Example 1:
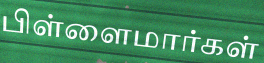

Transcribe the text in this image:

பிள்ளைமார்கள்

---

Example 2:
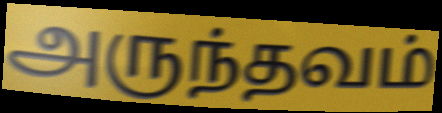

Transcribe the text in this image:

அருந்தவம்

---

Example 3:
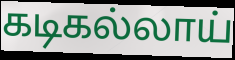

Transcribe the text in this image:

கடிகல்லாய்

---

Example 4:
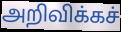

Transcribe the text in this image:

அறிவிக்கச்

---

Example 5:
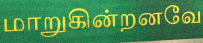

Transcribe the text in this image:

மாறுகின்றனவே